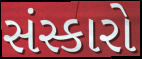
સંસ્કારો